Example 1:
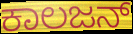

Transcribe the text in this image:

ಕಾಲಜನ್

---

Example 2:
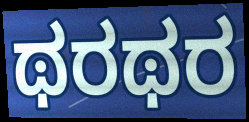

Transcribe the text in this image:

ಥರಥರ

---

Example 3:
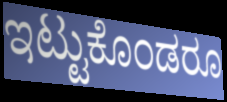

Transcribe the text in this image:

ಇಟ್ಟುಕೊಂಡರೂ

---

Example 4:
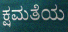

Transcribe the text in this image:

ಕ್ಷಮತೆಯ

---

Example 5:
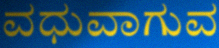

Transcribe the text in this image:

ವಧುವಾಗುವ